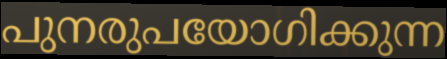
പുനരുപയോഗിക്കുന്ന